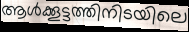
ആൾക്കൂട്ടത്തിനിടയിലെ